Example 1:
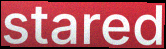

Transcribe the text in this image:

stared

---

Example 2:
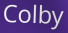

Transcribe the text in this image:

Colby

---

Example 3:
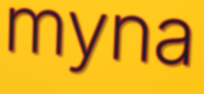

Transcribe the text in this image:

myna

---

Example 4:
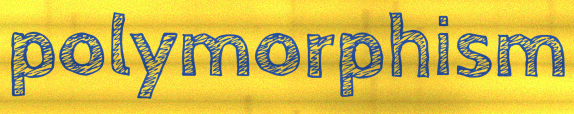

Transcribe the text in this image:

polymorphism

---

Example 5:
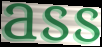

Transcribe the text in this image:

ass